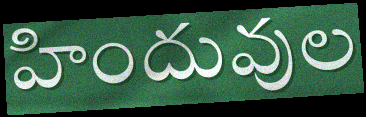
హిందువుల